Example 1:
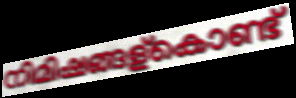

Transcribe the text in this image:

നിമിഷങ്ങള്കൊണ്ട്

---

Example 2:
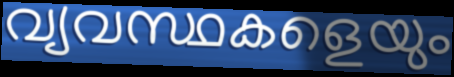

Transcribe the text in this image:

വ്യവസ്ഥകളെയും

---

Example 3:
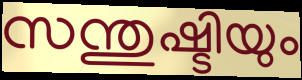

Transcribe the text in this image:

സന്തുഷ്ടിയും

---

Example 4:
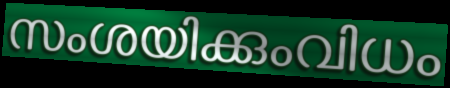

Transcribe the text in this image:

സംശയിക്കുംവിധം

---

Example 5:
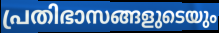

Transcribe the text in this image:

പ്രതിഭാസങ്ങളുടെയും